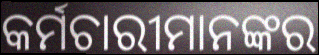
କର୍ମଚାରୀମାନଙ୍କର